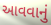
આવવાનું